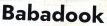
Babadook